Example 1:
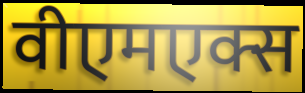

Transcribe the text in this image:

वीएमएक्स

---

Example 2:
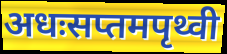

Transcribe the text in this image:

अधःसप्तमपृथ्वी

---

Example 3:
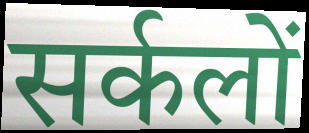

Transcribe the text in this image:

सर्कलों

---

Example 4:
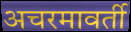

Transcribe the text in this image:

अचरमावर्ती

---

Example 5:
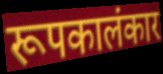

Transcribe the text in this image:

रूपकालंकार